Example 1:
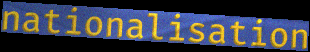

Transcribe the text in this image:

nationalisation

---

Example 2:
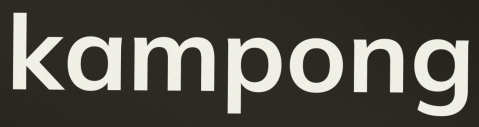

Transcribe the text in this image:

kampong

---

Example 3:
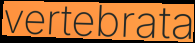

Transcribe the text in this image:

vertebrata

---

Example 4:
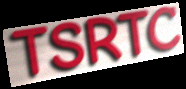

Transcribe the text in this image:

TSRTC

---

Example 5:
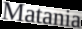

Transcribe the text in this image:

Matania